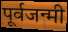
पूर्वजन्मी